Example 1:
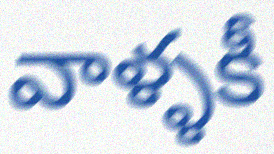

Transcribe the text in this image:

వాళ్ళకీ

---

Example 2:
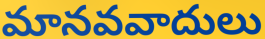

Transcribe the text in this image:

మానవవాదులు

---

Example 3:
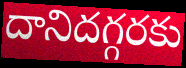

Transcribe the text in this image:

దానిదగ్గరకు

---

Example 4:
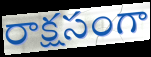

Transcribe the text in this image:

రాక్షసంగా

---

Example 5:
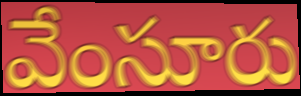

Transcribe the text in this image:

వేంసూరు